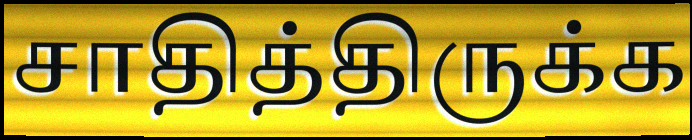
சாதித்திருக்க